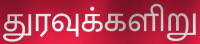
துரவுக்களிறு